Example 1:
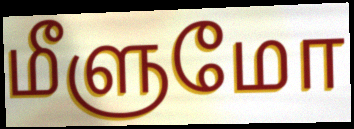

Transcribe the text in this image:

மீளுமோ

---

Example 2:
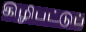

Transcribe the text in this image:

கிழிபட்டுப்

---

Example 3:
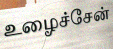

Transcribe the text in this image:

உழைச்சேன்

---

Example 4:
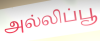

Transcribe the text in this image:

அல்லிப்பூ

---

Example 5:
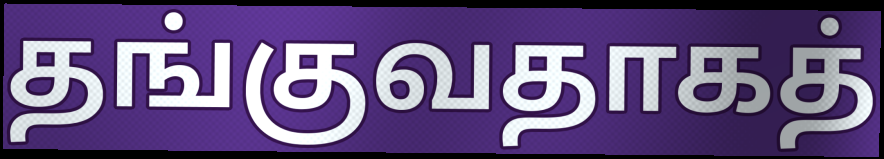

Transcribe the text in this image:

தங்குவதாகத்